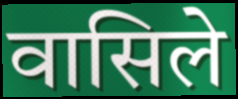
वासिले